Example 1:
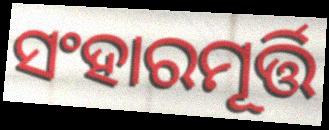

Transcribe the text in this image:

ସଂହାରମୂର୍ତ୍ତି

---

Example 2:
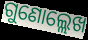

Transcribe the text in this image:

ଗୁଣୋଲ୍ଲେଖ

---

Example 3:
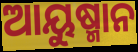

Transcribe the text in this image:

ଆୟୁଷ୍ମାନ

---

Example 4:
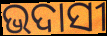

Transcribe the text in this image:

ଭଦାସୀ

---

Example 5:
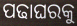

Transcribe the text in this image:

ପଢାଘରକୁ